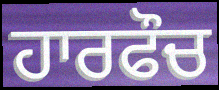
ਹਾਰਫੌਚ